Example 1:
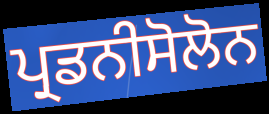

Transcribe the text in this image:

ਪ੍ਰਡਨੀਸੋਲੋਨ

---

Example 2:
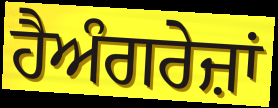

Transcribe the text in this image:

ਹੈਅੰਗਰੇਜ਼ਾਂ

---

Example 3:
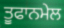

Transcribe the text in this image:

ਤੂਫਾਨਮੇਲ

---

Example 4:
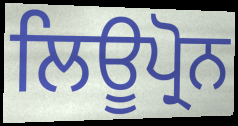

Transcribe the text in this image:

ਲਿਊਪ੍ਰੋਨ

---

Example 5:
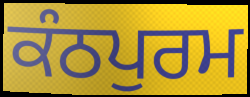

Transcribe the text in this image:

ਕੰਠਪੁਰਮ